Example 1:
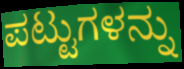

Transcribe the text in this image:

ಪಟ್ಟುಗಳನ್ನು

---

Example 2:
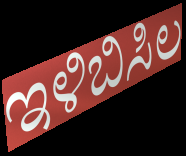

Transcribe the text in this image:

ಇಳಿಬಿಸಿಲ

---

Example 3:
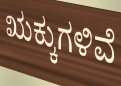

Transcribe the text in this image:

ಋಕ್ಕುಗಳಿವೆ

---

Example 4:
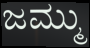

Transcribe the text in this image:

ಜಮ್ಮು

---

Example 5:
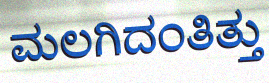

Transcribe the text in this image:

ಮಲಗಿದಂತಿತ್ತು